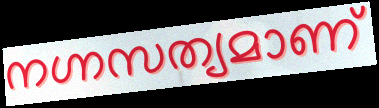
നഗ്നസത്യമാണ്